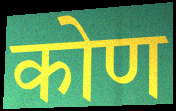
कोण